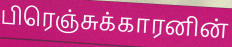
பிரெஞ்சுக்காரனின்